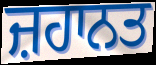
ਜ਼ਹਾਨਤ